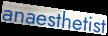
anaesthetist